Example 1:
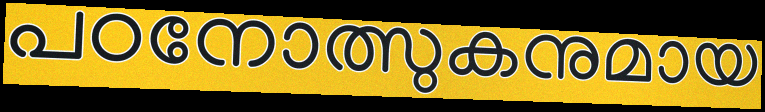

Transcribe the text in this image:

പഠനോത്സുകനുമായ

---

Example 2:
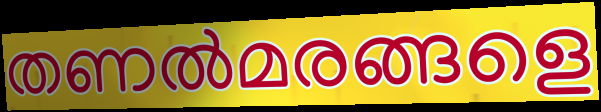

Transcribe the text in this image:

തണൽമരങ്ങളെ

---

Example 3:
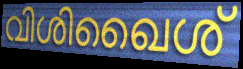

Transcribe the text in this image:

വിശിഖൈശ്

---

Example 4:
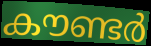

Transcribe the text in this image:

കൗണ്ടർ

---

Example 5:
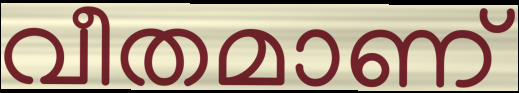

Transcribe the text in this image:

വീതമാണ്